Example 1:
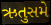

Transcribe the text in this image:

ઋતુસમે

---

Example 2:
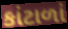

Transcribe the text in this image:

કાંટાળાં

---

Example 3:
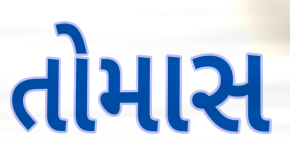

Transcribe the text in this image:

તોમાસ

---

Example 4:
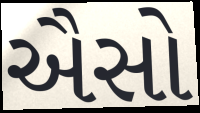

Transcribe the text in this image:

ઐસો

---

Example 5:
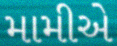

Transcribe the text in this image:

મામીએ